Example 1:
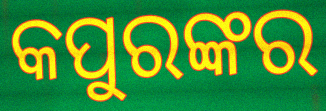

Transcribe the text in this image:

କପୁରଙ୍କର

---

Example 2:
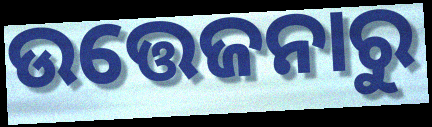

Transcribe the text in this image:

ଉତ୍ତେଜନାରୁ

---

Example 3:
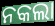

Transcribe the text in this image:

ନକଲା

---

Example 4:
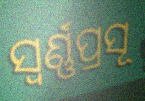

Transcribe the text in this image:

ସ୍ୱର୍ଣ୍ଣପ୍ରସୂ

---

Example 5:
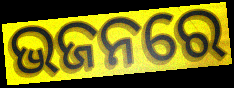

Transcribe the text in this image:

ଭଜନରେ